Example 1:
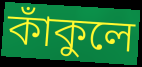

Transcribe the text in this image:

কাঁকুলে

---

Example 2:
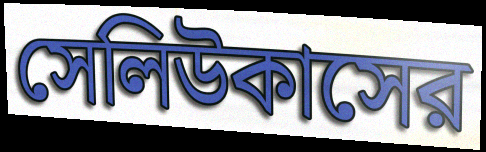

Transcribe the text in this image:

সেলিউকাসের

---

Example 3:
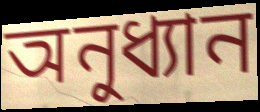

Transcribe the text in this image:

অনুধ্যান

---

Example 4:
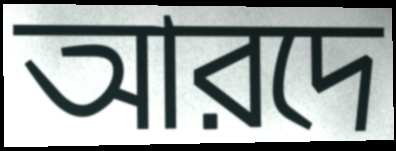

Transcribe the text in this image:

আরদে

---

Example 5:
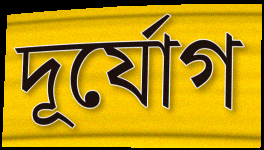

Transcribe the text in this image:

দূর্যোগ